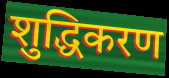
शुद्धिकरण